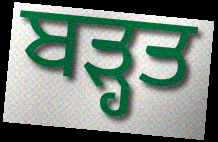
ਬੜ੍ਹਤ